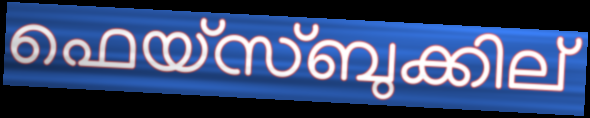
ഫെയ്സ്ബുക്കില്